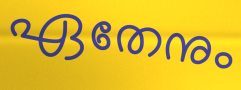
ഏതേനും